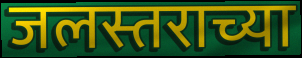
जलस्तराच्या